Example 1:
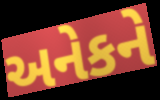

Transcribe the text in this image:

અનેકને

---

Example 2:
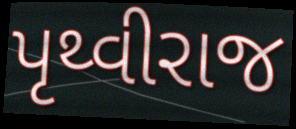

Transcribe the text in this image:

પૃથ્વીરાજ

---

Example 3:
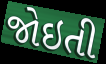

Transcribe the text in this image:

જોઇતી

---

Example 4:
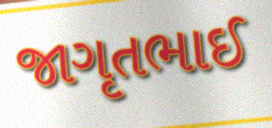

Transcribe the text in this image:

જાગૃતભાઈ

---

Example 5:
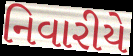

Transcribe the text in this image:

નિવારીયે